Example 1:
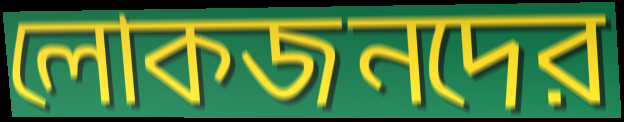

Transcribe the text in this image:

লোকজনদের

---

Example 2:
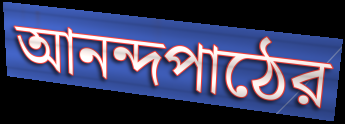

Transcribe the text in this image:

আনন্দপাঠের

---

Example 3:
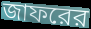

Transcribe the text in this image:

জাফরের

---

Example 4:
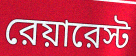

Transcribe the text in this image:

রেয়ারেস্ট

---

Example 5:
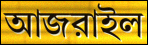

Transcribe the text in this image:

আজরাইল